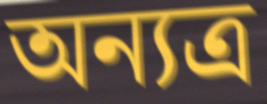
অন্যত্র